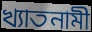
খ্যাতনামী